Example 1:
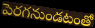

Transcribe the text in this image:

పెరగనుండటంతో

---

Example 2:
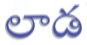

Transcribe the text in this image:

లాడ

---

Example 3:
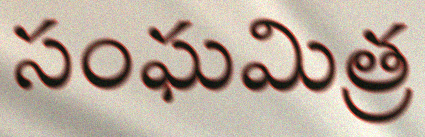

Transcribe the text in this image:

సంఘమిత్ర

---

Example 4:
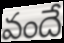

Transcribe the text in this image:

వందే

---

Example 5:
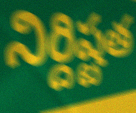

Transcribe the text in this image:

నిర్దిష్టత